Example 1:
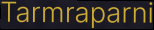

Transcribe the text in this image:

Tarmraparni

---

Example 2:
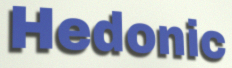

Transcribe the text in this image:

Hedonic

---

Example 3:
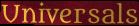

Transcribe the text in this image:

Universals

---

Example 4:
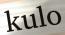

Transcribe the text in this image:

kulo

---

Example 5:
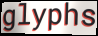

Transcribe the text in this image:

glyphs